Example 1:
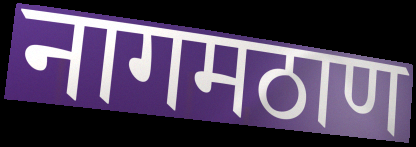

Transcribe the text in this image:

नागमठाण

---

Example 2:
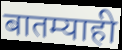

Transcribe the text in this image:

बातम्याही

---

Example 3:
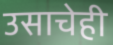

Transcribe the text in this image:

उसाचेही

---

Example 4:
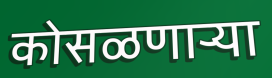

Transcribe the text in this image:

कोसळणाऱ्या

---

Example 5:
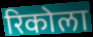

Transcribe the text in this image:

रिकोला